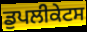
ਡੁਪਲੀਕੇਟਸ